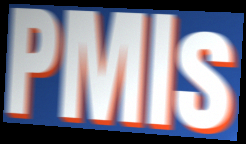
PMIs